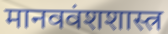
मानववंशशास्त्र